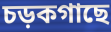
চড়কগাছে